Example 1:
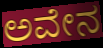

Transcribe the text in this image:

ಅವೇನ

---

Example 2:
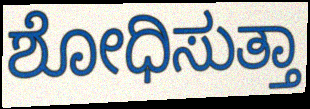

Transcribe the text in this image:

ಶೋಧಿಸುತ್ತಾ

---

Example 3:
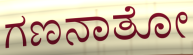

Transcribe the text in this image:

ಗಣನಾತೋ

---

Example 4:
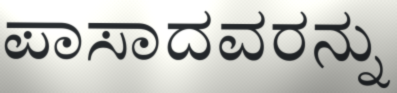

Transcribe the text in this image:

ಪಾಸಾದವರನ್ನು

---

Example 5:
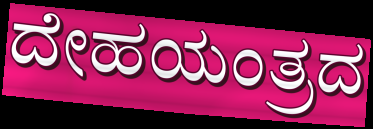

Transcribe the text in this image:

ದೇಹಯಂತ್ರದ